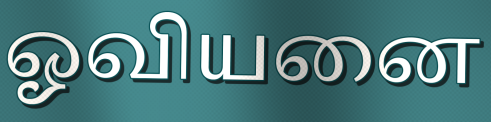
ஓவியனை